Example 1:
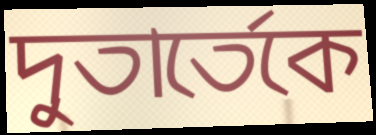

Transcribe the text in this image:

দুতার্তেকে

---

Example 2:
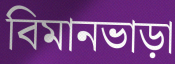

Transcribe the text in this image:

বিমানভাড়া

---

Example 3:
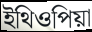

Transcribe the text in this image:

ইথিওপিয়া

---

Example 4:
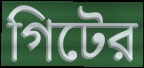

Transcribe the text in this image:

গিটের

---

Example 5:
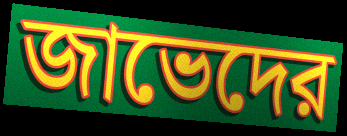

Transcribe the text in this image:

জাভেদের